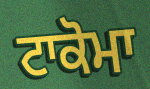
ਟਾਕੋਮਾ